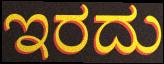
ಇರದು